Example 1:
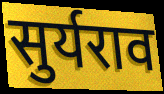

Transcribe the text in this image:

सुर्यराव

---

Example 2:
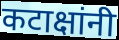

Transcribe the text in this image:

कटाक्षांनी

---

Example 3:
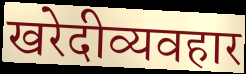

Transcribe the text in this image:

खरेदीव्यवहार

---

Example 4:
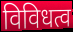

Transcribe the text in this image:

विविधत्व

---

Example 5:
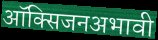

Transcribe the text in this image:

ऑक्सिजनअभावी